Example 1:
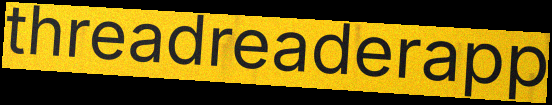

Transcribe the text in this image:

threadreaderapp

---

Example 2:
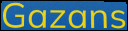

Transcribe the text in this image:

Gazans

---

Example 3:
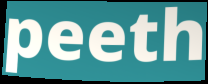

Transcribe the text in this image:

peeth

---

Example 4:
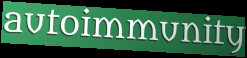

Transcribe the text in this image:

autoimmunity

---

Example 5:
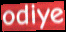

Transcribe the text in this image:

odiye